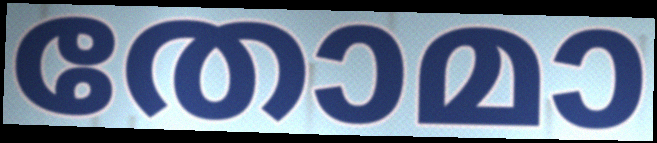
തോമാ